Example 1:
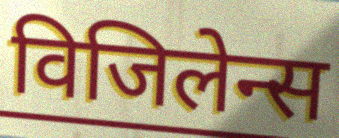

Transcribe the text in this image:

विजिलेन्स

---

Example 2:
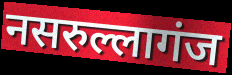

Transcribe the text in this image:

नसरुल्लागंज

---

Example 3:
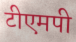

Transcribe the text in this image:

टीएमपी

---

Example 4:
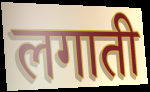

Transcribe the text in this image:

लगाती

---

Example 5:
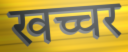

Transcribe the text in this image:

खच्चर